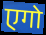
एगो